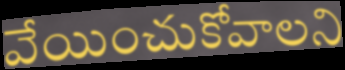
వేయించుకోవాలని